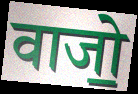
वाजो॒